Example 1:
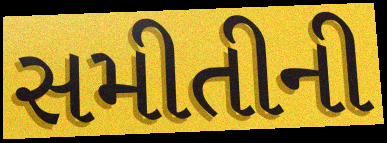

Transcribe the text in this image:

સમીતીની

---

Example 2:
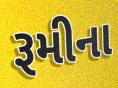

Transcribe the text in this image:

રૂમીના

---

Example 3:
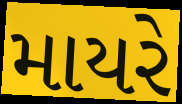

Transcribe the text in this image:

માયરે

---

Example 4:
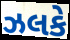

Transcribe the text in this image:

ઝલકે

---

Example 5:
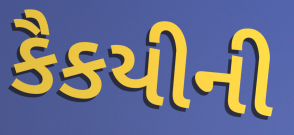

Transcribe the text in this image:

કૈકયીની